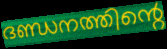
ദണ്ഡനത്തിന്റെ